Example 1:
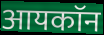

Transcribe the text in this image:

आयकॉन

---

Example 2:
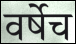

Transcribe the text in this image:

वर्षेच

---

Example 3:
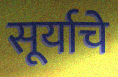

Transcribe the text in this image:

सूर्याचे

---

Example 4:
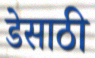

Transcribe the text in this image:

डेसाठी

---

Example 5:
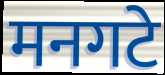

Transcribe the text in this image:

मनगटे